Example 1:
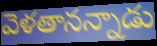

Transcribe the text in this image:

వెళతానన్నాడు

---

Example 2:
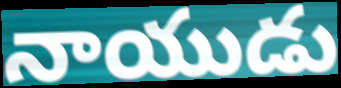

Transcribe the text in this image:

నాయుడు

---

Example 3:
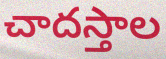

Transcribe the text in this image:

చాదస్తాల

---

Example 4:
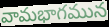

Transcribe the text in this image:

వామభాగమున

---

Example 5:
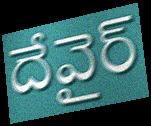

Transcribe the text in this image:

దేవైర్